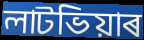
লাটভিয়াৰ